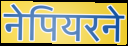
नेपियरने